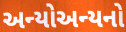
અન્યોઅન્યનો